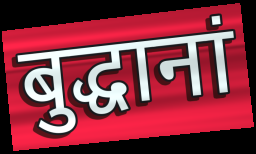
बुद्धानां